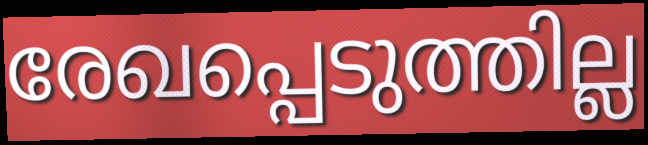
രേഖപ്പെടുത്തില്ല